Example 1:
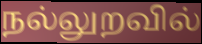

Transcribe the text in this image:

நல்லுறவில்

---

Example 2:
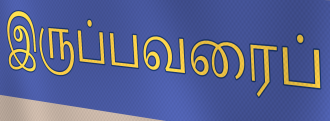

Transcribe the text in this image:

இருப்பவரைப்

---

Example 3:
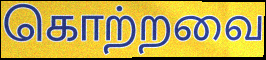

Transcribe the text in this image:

கொற்றவை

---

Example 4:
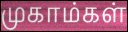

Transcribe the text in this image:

முகாம்கள்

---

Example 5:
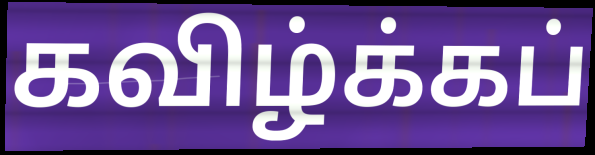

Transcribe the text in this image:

கவிழ்க்கப்